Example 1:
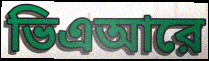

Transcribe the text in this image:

ভিএআরে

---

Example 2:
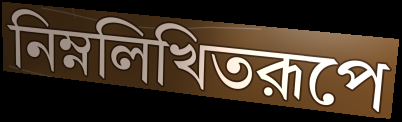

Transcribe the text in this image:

নিম্নলিখিতরূপে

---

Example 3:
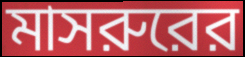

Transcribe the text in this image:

মাসরুরের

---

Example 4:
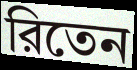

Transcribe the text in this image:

রিতেন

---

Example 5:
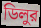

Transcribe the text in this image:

ডিলুর